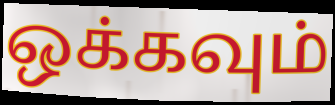
ஒக்கவும்